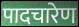
पादचारेण